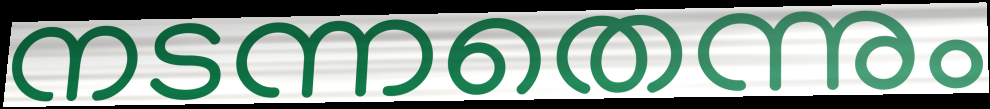
നടന്നതെന്നും